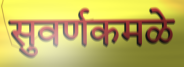
सुवर्णकमळे